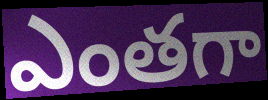
ఎంతగా